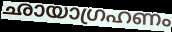
ഛായാഗ്രഹണം